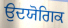
ਉਦਯੋਗਿਕ